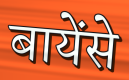
बायेंसे